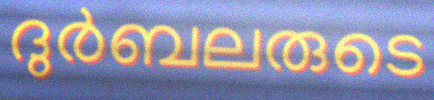
ദുർബലരുടെ